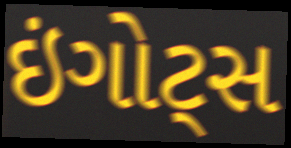
ઇંગોટ્સ